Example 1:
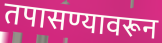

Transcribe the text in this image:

तपासण्यावरून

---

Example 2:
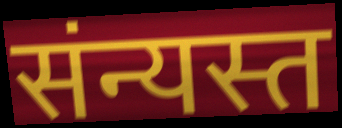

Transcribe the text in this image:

संन्यस्त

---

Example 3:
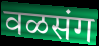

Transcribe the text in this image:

वळसंग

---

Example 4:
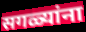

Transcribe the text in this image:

सगळ्यांना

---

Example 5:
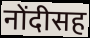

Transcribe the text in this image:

नोंदीसह